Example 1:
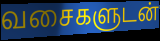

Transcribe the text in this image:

வசைகளுடன்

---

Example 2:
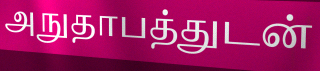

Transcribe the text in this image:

அநுதாபத்துடன்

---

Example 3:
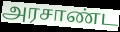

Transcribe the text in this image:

அரசாண்ட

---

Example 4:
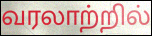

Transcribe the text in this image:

வரலாற்றில்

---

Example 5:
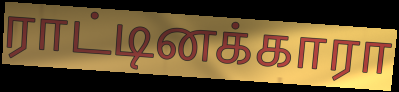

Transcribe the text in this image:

ராட்டினக்காரா